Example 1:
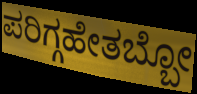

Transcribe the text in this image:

ಪರಿಗ್ಗಹೇತಬ್ಬೋ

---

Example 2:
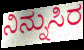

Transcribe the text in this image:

ನಿನ್ನುಸಿರ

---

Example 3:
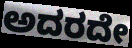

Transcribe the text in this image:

ಅದರದೇ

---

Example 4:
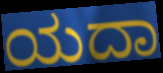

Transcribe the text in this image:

ಯದಾ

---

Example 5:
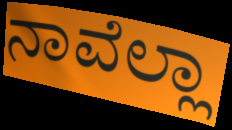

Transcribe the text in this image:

ನಾವೆಲ್ಲಾ